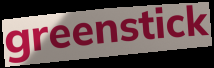
greenstick